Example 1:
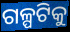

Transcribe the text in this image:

ଗଳ୍ପଟିକୁ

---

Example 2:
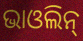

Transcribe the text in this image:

ଭାଓଲିନ୍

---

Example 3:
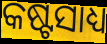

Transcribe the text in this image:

କଷ୍ଟସାଧ୍ଯ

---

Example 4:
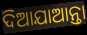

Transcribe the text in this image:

ଦିଆଯାଆନ୍ତା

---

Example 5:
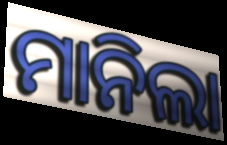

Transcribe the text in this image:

ମାନିଲା